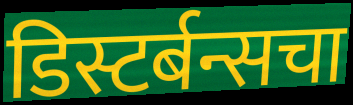
डिस्टर्बन्सचा